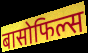
बासोफिल्स